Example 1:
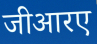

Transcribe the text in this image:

जीआरए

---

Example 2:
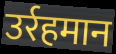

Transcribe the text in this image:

उर्रहमान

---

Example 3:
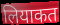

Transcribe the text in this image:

लियाकत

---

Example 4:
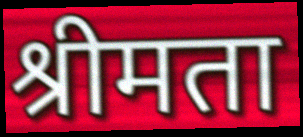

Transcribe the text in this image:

श्रीमता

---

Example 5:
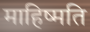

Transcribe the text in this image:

माहिष्मति